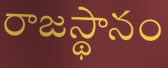
రాజస్థానం